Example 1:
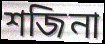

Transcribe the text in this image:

শজিনা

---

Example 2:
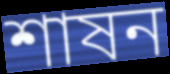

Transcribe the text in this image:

শাষন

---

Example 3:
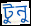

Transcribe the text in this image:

টুনু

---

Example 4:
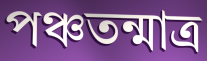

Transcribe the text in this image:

পঞ্চতন্মাত্র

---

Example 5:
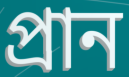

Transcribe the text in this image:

প্রান